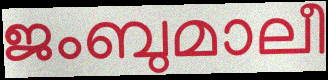
ജംബുമാലീ